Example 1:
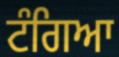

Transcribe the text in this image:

ਟੰਗਿਆ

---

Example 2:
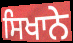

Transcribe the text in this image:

ਸਿਖਾਨੇ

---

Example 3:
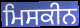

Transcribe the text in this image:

ਮਿਸਕੀਨ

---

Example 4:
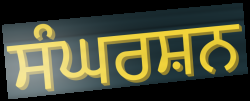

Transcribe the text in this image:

ਸੰਘਰਸ਼ਨ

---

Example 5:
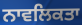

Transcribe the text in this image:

ਨਾਵਲਿਕਤਾ